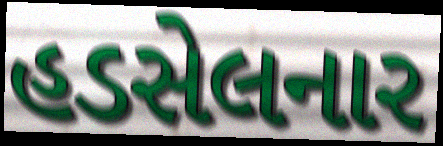
હડસેલનાર